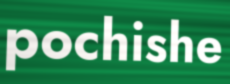
pochishe